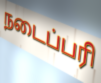
நடைப்பரி